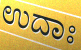
ಉದಾಃ